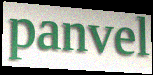
panvel